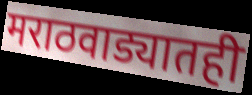
मराठवाड्यातही